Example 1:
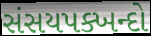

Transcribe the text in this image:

સંસયપક્ખન્દો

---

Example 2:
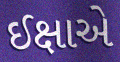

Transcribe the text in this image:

ઈક્ષાએ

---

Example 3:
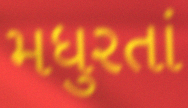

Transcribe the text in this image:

મધુરતાં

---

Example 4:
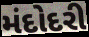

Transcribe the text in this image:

મંદોદરી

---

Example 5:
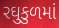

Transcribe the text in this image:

રઘુકુળમાં